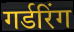
गर्डरिंग